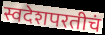
स्वदेशपरतीचं